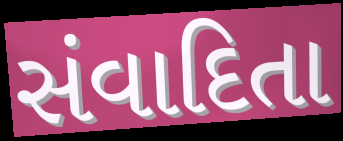
સંવાદિતા